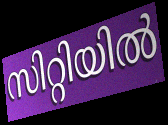
സിറ്റിയിൽ